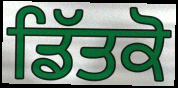
ਡਿੱਤਕੋ